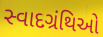
સ્વાદગ્રંથિઓ